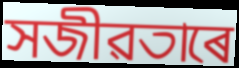
সজীৱতাৰে